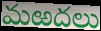
మఱదలు